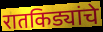
रातकिड्यांचे